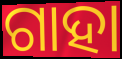
ଗାହା